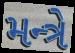
મન્ત્રે